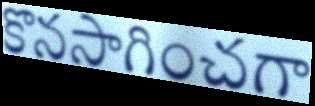
కొనసాగించగా